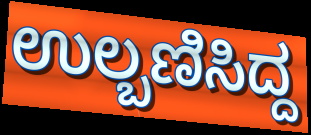
ಉಲ್ಬಣಿಸಿದ್ದ